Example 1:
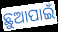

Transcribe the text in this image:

ଛୁଆପାଇଁ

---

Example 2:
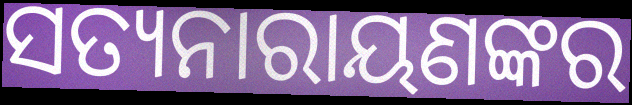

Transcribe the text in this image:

ସତ୍ୟନାରାୟଣଙ୍କର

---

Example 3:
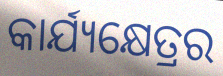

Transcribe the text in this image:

କାର୍ଯ୍ୟକ୍ଷେତ୍ରର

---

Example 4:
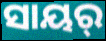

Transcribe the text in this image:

ସାୟର୍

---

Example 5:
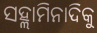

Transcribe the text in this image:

ସହ୍ଲାମିନାଦିକୁ